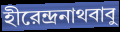
হীরেন্দ্রনাথবাবু